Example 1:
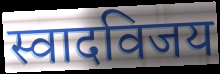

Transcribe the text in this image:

स्वादविजय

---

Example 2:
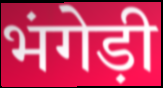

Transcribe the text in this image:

भंगेड़ी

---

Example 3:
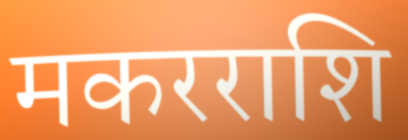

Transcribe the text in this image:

मकरराशि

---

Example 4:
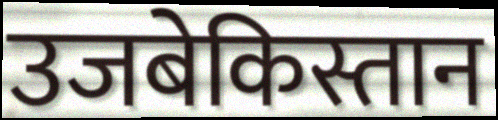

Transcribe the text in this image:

उजबेकिस्तान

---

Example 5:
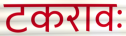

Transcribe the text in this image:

टकरावः